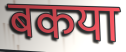
बकया